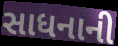
સાધનાની